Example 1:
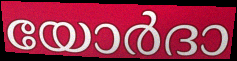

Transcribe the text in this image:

യോർദാ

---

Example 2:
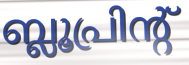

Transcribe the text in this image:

ബ്ലൂപ്രിന്റ്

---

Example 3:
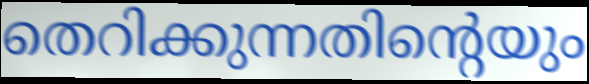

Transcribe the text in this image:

തെറിക്കുന്നതിന്റെയും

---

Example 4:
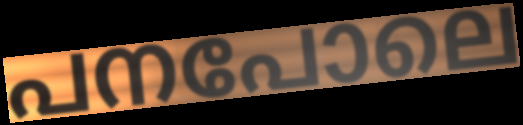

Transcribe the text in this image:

പനപോലെ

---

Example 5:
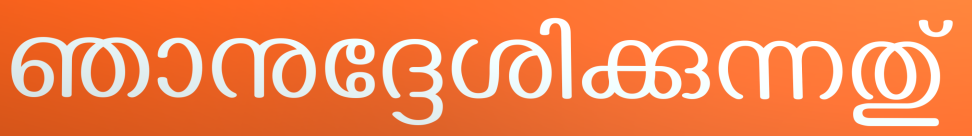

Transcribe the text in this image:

ഞാനുദ്ദേശിക്കുന്നതു്